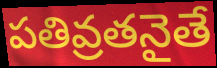
పతివ్రతనైతే